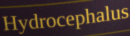
Hydrocephalus